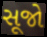
સૂજો